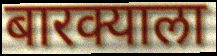
बारक्याला